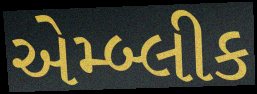
એમ્બ્લીક